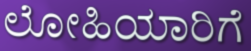
ಲೋಹಿಯಾರಿಗೆ